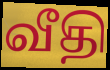
வீதி